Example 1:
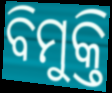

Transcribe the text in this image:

ବିମୁକ୍ତି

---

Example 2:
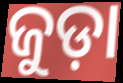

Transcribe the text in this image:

ଜୁଡ଼ା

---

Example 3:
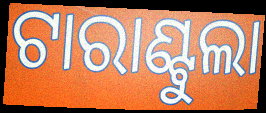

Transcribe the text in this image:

ଟାରାଣ୍ଟୁଲା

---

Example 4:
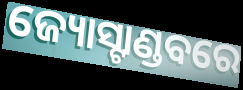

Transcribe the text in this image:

ଜ୍ୟୋସ୍ଟାଣ୍ଡବରେ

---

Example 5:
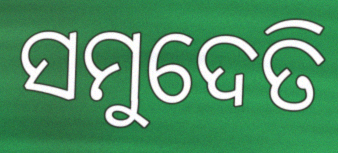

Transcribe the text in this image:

ସମୁଦେତି